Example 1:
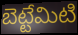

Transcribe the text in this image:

బెట్టేమిటి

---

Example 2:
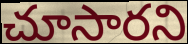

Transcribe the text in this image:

చూసారని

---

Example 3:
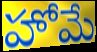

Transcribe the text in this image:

హోమే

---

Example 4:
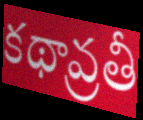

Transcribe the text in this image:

కథావ్రతీ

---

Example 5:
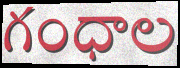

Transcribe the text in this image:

గంధాల